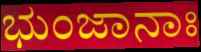
ಭುಂಜಾನಾಃ